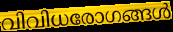
വിവിധരോഗങ്ങൾ